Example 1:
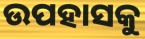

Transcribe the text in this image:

ଉପହାସକୁ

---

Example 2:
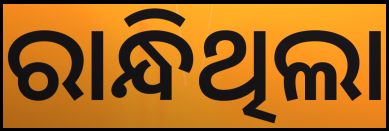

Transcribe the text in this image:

ରାନ୍ଧିଥିଲା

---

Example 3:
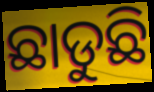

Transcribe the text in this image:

ଛାଡୁଛି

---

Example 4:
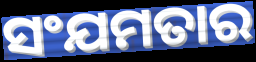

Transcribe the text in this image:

ସଂଯମତାର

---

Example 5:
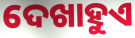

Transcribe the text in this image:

ଦେଖାହୁଏ